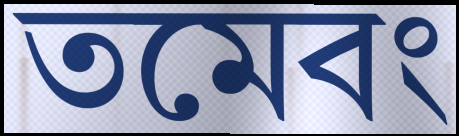
তমেবং